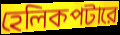
হেলিকপটারে